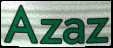
Azaz